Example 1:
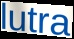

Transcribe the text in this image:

lutra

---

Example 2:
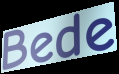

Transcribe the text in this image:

Bede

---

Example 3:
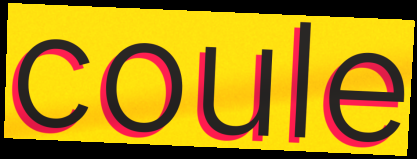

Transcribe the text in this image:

coule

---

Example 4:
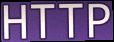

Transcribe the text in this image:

HTTP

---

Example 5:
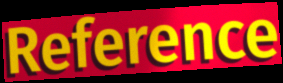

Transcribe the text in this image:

Reference